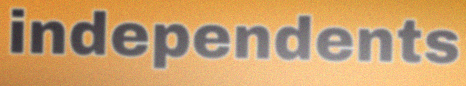
independents